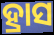
ହ୍ରାସ